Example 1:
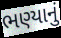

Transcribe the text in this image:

ભણ્યાનું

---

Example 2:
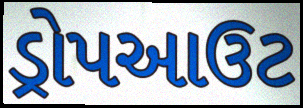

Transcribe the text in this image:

ડ્રોપઆઉટ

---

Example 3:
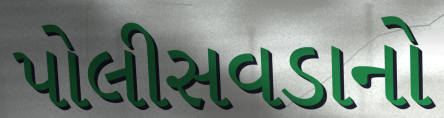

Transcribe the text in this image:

પોલીસવડાનો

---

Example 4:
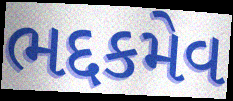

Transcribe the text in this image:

ભદ્દકમેવ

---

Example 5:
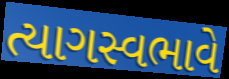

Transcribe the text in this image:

ત્યાગસ્વભાવે